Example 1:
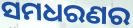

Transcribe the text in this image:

ସମଧରଣର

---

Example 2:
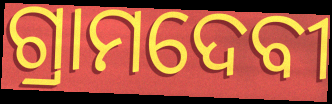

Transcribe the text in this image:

ଗ୍ରାମଦେବୀ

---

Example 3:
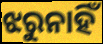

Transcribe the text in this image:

ଝରୁନାହିଁ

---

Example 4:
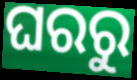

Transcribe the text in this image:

ଘରରୁ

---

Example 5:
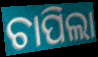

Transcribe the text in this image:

ଚାପିଲା